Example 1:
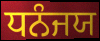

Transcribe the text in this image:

ਧਨੰਜਯ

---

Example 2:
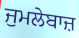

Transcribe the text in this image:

ਜੁਮਲੇਬਾਜ਼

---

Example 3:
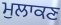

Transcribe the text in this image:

ਮੁਲਾਕਣ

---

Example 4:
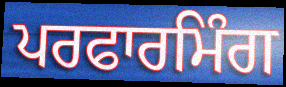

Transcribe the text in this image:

ਪਰਫਾਰਮਿੰਗ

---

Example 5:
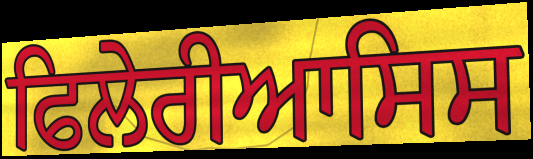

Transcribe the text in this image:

ਫਿਲੇਰੀਆਸਿਸ